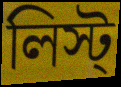
লিস্ট্